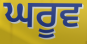
ਘਰੂਵ